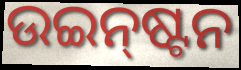
ଉଇନ୍‌ଷ୍ଟନ